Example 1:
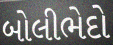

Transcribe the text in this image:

બોલીભેદો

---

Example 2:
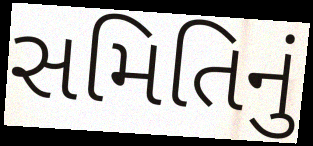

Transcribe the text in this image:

સમિતિનું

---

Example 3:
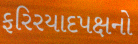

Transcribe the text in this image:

ફરિરયાદપક્ષનો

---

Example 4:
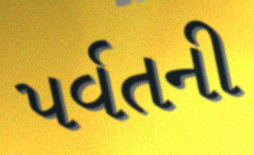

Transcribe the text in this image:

પર્વતની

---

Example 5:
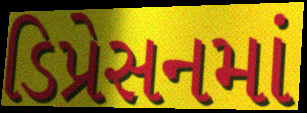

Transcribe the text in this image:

ડિપ્રેસનમાં